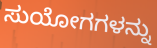
ಸುಯೋಗಗಳನ್ನು